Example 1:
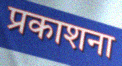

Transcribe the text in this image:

प्रकाशना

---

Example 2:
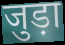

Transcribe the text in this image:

जुड़ा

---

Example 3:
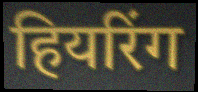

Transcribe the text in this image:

हियरिंग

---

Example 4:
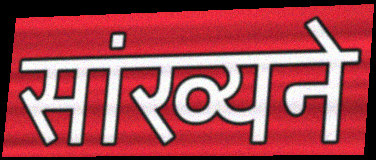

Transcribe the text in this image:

सांख्यने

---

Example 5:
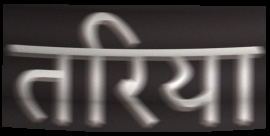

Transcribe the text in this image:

तरिया